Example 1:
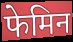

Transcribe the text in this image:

फेमिन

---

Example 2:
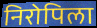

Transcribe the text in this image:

निरोपिला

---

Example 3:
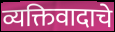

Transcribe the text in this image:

व्यक्तिवादाचे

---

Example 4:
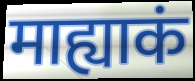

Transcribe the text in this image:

माह्याकं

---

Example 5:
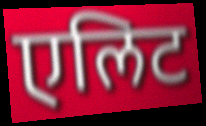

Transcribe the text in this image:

एलिट